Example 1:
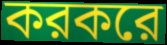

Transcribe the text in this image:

করকরে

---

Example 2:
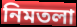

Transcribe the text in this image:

নিমতলা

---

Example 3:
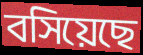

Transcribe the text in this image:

বসিয়েছে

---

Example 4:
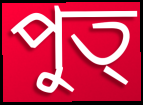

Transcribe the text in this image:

পুত্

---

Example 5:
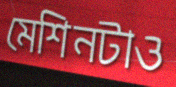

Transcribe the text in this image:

মেশিনটাও